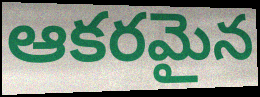
ఆకరమైన